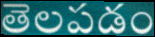
తెలపడం